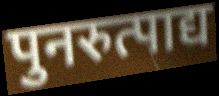
पुनरुत्पाद्य